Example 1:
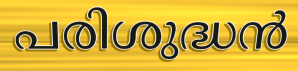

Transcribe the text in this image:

പരിശുദ്ധൻ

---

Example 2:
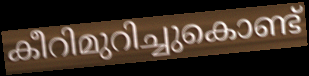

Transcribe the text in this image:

കീറിമുറിച്ചുകൊണ്ട്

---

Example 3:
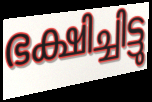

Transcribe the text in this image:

ഭക്ഷിച്ചിട്ടു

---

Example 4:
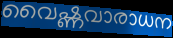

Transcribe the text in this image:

വൈഷ്ണവാരാധന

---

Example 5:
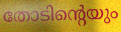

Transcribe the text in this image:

തോടിന്റെയും